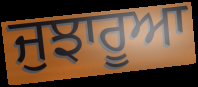
ਜੁਝਾਰੂਆ